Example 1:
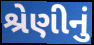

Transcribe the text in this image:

શ્રેણીનું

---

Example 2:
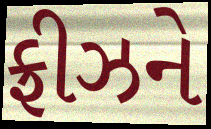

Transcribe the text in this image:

ફ્રીઝને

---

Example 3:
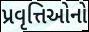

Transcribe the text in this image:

પ્રવૃત્તિઓનો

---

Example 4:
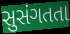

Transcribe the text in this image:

સુસંગતતા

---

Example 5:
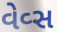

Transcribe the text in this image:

વેવ્સ